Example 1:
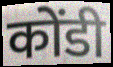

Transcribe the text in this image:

कोंडी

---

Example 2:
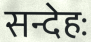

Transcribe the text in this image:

सन्देहः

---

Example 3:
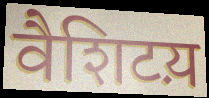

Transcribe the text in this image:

वैशिटय़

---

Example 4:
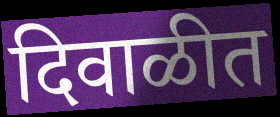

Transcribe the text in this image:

दिवाळीत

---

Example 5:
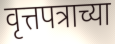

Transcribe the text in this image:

वृत्तपत्राच्या